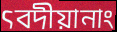
ৎবদীয়ানাং